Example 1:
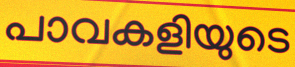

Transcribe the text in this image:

പാവകളിയുടെ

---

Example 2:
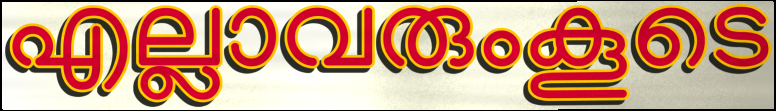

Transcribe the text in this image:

എല്ലാവരുംകൂടെ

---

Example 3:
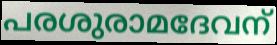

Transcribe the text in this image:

പരശുരാമദേവന്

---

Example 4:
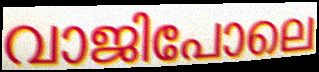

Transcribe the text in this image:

വാജിപോലെ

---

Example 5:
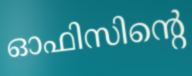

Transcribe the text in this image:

ഓഫിസിന്റെ